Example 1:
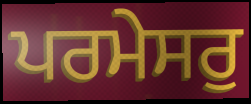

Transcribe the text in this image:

ਪਰਮੇਸਰੁ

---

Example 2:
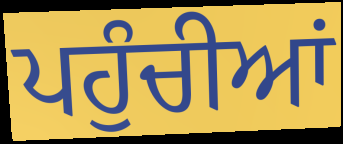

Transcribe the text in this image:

ਪਹੁੰਚੀਆਂ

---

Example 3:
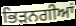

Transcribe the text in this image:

ਭਿੜਨਗੀਆਂ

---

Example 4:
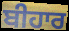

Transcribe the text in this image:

ਬੀਹਾਰ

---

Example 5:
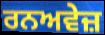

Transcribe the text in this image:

ਰਨਅਵੇਜ਼